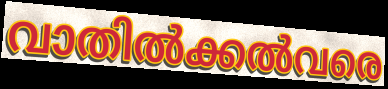
വാതിൽക്കൽവരെ